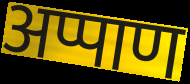
अप्पाण